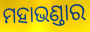
ମହାଭଣ୍ଡାର